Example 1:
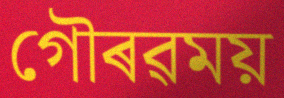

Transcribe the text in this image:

গৌৰৱময়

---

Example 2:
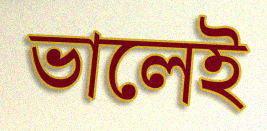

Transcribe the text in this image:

ভালেই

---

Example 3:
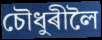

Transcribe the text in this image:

চৌধুৰীলৈ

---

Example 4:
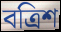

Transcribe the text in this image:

বত্ৰিশ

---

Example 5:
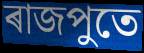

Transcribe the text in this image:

ৰাজপুতে